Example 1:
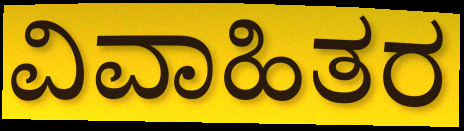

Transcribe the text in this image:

ವಿವಾಹಿತರ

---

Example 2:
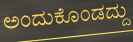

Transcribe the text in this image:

ಅಂದುಕೊಂಡದ್ದು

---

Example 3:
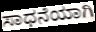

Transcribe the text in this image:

ಸಾಧನೆಯಾಗಿ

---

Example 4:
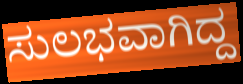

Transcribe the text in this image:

ಸುಲಭವಾಗಿದ್ದ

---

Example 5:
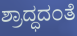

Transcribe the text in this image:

ಶ್ರಾದ್ಧದಂತೆ